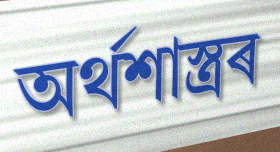
অৰ্থশাস্ত্ৰৰ